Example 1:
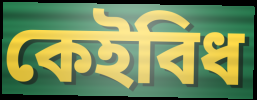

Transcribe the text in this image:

কেইবিধ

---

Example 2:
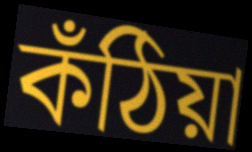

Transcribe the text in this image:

কঁঠিয়া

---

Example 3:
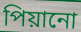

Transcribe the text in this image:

পিয়ানো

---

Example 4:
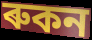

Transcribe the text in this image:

ৰুকন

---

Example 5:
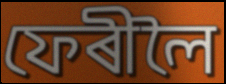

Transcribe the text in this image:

ফেৰীলৈ